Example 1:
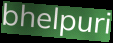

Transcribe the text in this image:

bhelpuri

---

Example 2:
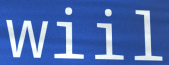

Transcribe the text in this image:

wiil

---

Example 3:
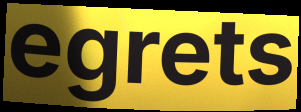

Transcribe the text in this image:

egrets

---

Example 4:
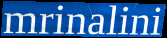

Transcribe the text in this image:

mrinalini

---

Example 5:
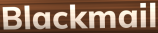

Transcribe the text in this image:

Blackmail